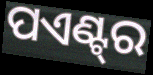
ପଏଣ୍ଟ୍‌ର